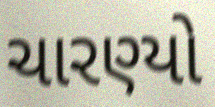
ચારણ્યો